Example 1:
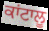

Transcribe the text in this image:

ਕਾਂਟਾਲੂ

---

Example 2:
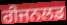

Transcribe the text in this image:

ਰੀਜਨਲਡ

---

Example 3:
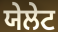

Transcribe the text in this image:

ਯੇਲੇਟ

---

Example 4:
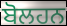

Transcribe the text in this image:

ਬੋਲਹਨ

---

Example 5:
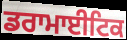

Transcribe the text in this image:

ਡਰਾਮਾਈਟਿਕ